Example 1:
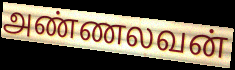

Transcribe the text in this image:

அண்ணலவன்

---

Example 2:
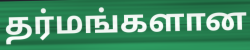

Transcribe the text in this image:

தர்மங்களான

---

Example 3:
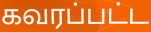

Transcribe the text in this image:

கவரப்பட்ட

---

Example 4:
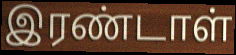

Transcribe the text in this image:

இரண்டாள்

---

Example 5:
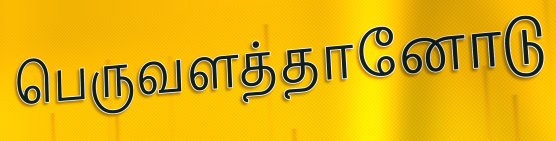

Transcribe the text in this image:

பெருவளத்தானோடு